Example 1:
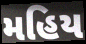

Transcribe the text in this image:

મહિય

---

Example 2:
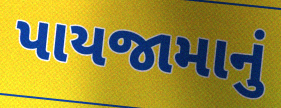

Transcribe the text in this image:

પાયજામાનું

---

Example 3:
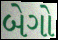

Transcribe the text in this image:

બેગો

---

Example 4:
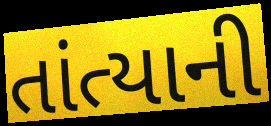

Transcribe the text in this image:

તાંત્યાની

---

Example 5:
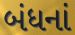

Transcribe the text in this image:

બંધનાં